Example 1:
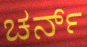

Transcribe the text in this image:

ಚರ್ನ್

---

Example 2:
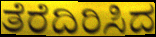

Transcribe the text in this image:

ತೆರೆದಿರಿಸಿದ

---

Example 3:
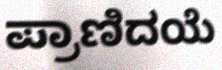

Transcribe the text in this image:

ಪ್ರಾಣಿದಯೆ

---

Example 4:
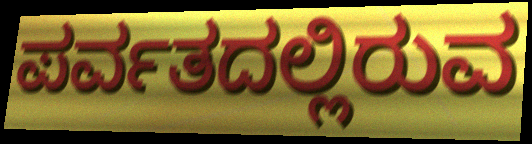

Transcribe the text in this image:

ಪರ್ವತದಲ್ಲಿರುವ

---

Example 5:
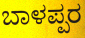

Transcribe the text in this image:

ಬಾಳಪ್ಪರ